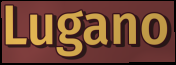
Lugano